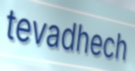
tevadhech